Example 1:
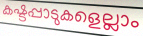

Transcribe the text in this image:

കഷ്ടപ്പാടുകളെല്ലാം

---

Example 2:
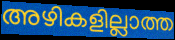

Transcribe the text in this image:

അഴികളില്ലാത്ത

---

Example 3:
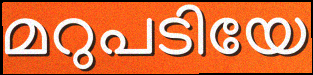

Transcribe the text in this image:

മറുപടിയേ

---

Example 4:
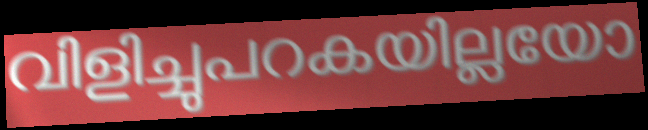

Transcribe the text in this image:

വിളിച്ചുപറകയില്ലയോ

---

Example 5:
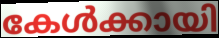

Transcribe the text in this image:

കേൾക്കായി